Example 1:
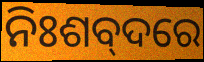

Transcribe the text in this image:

ନିଃଶବ୍‌ଦରେ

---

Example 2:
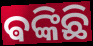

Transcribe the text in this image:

ଵଙ୍କିଛି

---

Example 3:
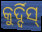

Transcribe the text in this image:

କୁର୍ଦ୍ଦିସ୍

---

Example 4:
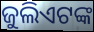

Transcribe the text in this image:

ଜୁଲିଏଟଙ୍କ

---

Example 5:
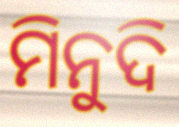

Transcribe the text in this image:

ମିନୁଦି